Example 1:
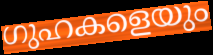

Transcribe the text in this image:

ഗുഹകളെയും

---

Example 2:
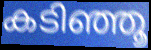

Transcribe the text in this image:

കടിഞ്ഞൂ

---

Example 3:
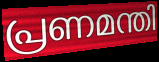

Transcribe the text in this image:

പ്രണമന്തി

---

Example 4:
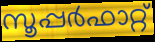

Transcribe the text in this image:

സൂപ്പർഫാറ്റ്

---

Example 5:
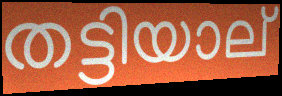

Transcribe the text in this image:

തട്ടിയാല്